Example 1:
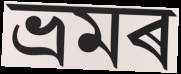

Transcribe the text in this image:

ভ্ৰমৰ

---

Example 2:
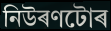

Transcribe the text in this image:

নিউৰণটোৰ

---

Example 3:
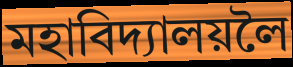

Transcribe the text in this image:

মহাবিদ্যালয়লৈ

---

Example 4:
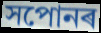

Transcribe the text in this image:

সপোনৰ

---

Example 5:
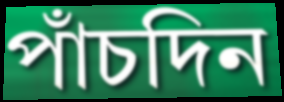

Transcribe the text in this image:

পাঁচদিন